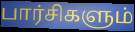
பார்சிகளும்